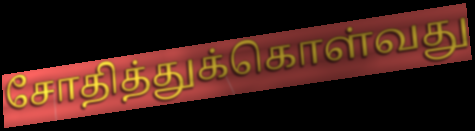
சோதித்துக்கொள்வது